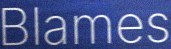
Blames